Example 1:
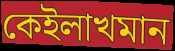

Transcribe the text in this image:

কেইলাখমান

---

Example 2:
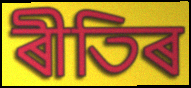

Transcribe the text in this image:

ৰীতিৰ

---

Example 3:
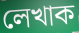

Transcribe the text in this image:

লেখাক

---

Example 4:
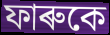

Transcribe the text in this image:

ফাৰুকে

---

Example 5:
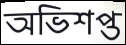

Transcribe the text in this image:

অভিশপ্ত